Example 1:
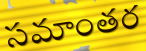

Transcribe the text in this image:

సమాంతర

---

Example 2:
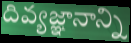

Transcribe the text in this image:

దివ్యజ్ఞానాన్ని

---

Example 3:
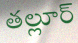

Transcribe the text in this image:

తల్లూర్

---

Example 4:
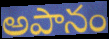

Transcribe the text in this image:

అపానం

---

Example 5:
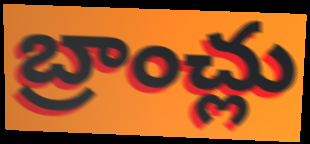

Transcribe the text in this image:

బ్రాంచ్లు